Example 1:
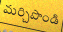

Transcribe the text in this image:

మర్చిపొండి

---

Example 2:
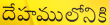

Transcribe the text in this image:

దేహములోనికి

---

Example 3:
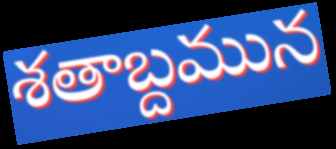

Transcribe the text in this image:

శతాబ్దమున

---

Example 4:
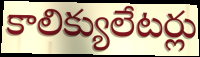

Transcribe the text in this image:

కాలిక్యులేటర్లు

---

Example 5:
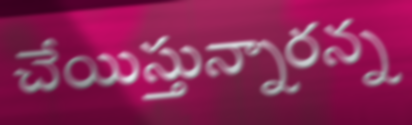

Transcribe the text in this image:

చేయిస్తున్నారన్న